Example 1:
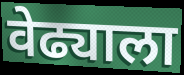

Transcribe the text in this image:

वेढ्याला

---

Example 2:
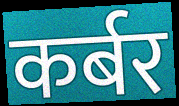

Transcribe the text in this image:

कर्बर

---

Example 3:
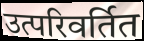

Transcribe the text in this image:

उत्परिवर्तित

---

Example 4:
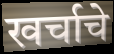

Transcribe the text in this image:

खर्चाचे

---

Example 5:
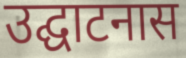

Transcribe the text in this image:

उद्घाटनास